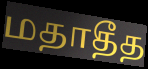
மதாதீத